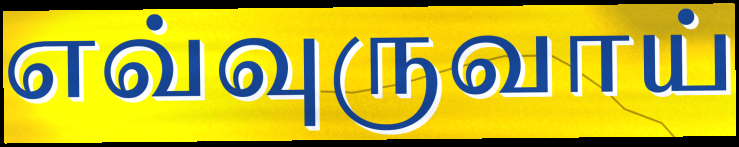
எவ்வுருவாய்